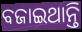
ବଜାଇଥାନ୍ତି